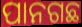
ପାନଗଛ